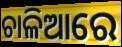
ଚାଳିଆରେ